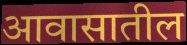
आवासातील